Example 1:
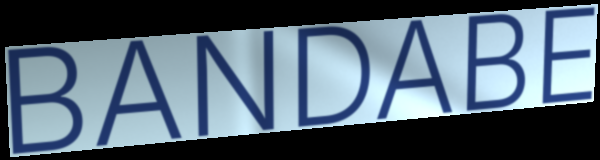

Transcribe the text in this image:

BANDABE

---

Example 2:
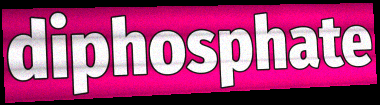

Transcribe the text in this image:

diphosphate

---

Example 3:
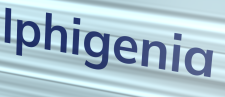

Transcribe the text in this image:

Iphigenia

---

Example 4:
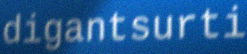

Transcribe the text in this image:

digantsurti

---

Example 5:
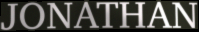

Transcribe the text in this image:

JONATHAN